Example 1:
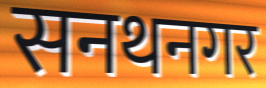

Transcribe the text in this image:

सनथनगर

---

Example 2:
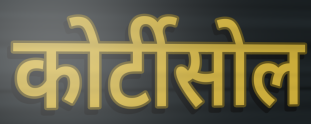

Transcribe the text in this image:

कोर्टीसोल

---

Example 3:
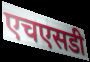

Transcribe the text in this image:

एचएसडी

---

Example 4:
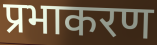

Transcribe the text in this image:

प्रभाकरण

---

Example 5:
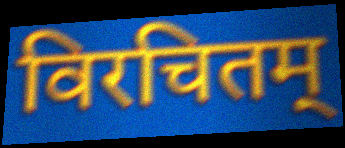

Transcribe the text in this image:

विरचितम्